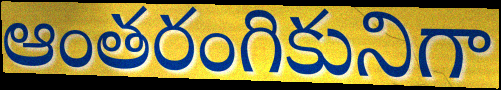
ఆంతరంగికునిగా